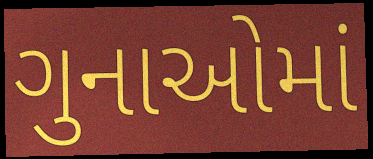
ગુનાઓમાં